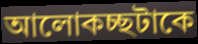
আলোকচ্ছটাকে